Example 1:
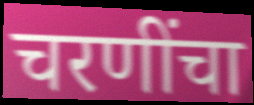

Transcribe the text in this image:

चरणींचा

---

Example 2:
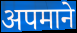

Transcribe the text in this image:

अपमाने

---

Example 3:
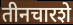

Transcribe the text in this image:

तीनचारशे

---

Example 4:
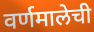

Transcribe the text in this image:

वर्णमालेची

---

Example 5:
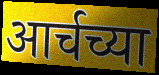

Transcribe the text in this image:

आर्चच्या